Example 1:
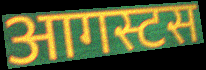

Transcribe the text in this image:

आगस्टस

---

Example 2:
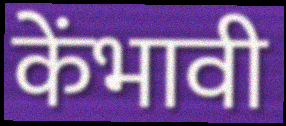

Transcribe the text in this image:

केंभावी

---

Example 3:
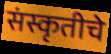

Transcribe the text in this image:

संस्कृतीचे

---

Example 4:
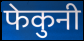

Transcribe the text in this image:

फेकुनी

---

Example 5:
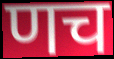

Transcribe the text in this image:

णच